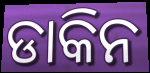
ଡାକିନ